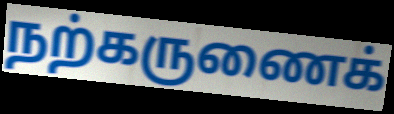
நற்கருணைக்